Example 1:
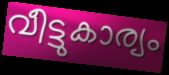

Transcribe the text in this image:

വീട്ടുകാര്യം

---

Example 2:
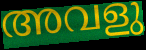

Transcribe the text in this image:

അവളു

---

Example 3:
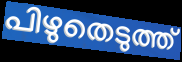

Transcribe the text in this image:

പിഴുതെടുത്ത്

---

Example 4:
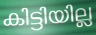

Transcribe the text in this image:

കിട്ടിയില്ല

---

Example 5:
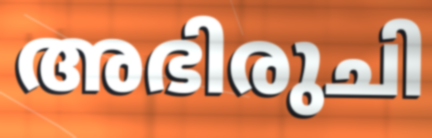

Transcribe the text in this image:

അഭിരുചി